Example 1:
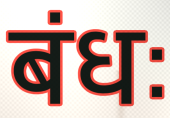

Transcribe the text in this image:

बंधः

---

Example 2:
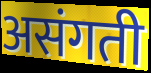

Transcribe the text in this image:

असंगती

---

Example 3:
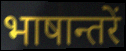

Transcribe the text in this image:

भाषान्तरें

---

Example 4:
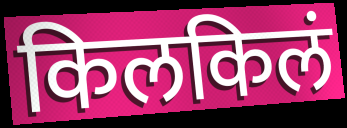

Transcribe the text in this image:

किलकिलं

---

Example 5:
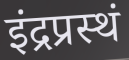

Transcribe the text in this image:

इंद्रप्रस्थं